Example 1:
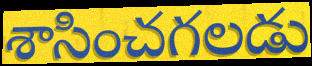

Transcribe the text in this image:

శాసించగలడు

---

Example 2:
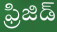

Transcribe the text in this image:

ఫ్రిజిడ్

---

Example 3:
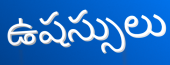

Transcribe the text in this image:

ఉషస్సులు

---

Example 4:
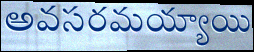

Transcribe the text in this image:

అవసరమయ్యాయి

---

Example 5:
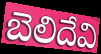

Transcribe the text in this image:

బెలిదేవి